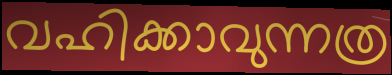
വഹിക്കാവുന്നത്ര